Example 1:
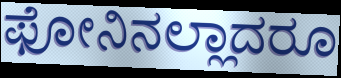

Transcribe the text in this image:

ಫೋನಿನಲ್ಲಾದರೂ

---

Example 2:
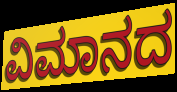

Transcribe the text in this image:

ವಿಮಾನದ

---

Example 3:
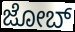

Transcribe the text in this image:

ಜೋಬ್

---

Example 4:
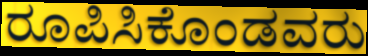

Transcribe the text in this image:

ರೂಪಿಸಿಕೊಂಡವರು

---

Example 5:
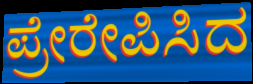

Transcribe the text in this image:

ಪ್ರೇರೇಪಿಸಿದ